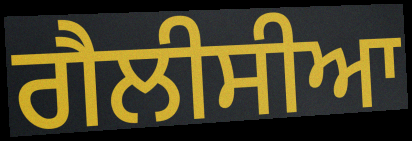
ਗੈਲੀਸੀਆ